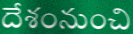
దేశంనుంచి